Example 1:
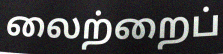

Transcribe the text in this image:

லைற்றைப்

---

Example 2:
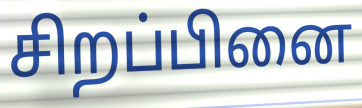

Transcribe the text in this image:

சிறப்பினை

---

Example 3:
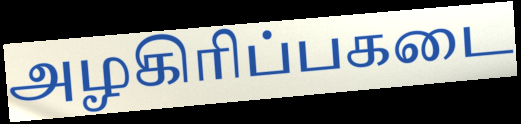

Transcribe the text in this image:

அழகிரிப்பகடை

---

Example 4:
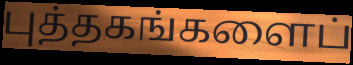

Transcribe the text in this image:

புத்தகங்களைப்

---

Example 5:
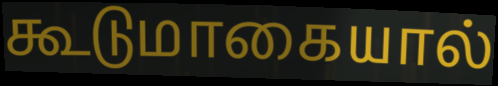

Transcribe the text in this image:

கூடுமாகையால்